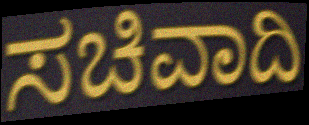
ಸಚಿವಾದಿ